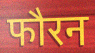
फौरन